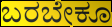
ಬರಬೇಕೂ